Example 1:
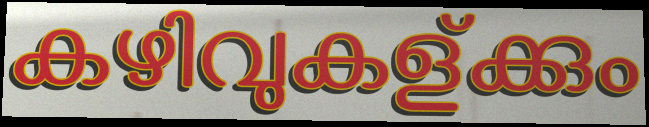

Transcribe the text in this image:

കഴിവുകള്ക്കും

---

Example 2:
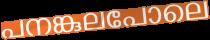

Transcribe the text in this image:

പനങ്കുലപോലെ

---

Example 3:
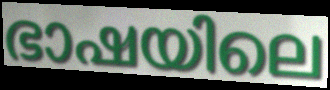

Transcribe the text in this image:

ഭാഷയിലെ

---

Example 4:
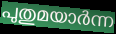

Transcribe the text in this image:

പുതുമയാർന്ന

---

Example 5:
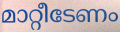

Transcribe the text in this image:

മാറ്റീടേണം